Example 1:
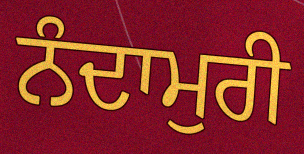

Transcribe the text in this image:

ਨੰਦਾਮੁਰੀ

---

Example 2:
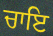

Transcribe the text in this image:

ਚਾਇ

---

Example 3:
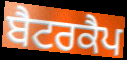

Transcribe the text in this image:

ਬੈਟਰਕੈਪ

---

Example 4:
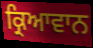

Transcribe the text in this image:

ਕ੍ਰਿਆਵਾਨ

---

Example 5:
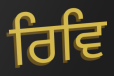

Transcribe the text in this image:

ਰਿਵਿ